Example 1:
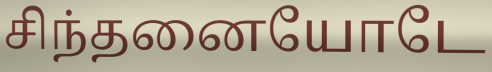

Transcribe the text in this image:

சிந்தனையோடே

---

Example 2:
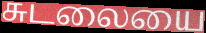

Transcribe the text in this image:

சுடலையை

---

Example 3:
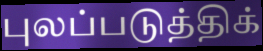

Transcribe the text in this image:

புலப்படுத்திக்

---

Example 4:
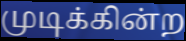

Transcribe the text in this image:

முடிக்கின்ற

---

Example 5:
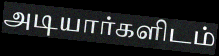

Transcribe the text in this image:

அடியார்களிடம்